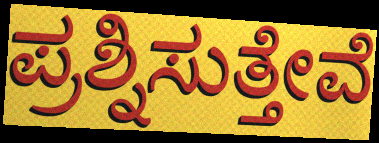
ಪ್ರಶ್ನಿಸುತ್ತೇವೆ